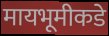
मायभूमीकडे